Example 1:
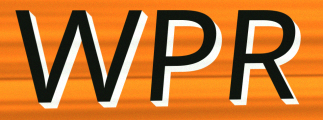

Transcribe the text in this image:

WPR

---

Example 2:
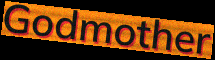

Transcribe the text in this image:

Godmother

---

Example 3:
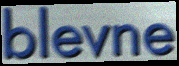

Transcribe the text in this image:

blevne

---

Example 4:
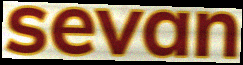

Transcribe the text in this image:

sevan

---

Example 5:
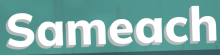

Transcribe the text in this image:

Sameach